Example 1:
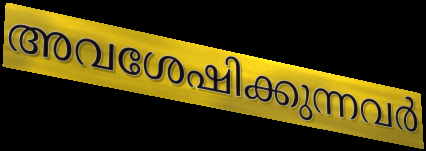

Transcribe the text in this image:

അവശേഷിക്കുന്നവർ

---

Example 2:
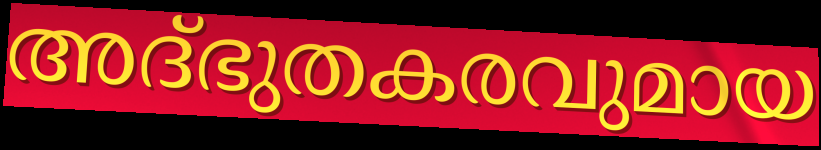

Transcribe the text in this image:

അദ്ഭുതകരവുമായ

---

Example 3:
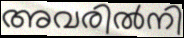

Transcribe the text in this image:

അവരിൽനി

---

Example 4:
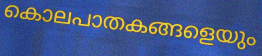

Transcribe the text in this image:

കൊലപാതകങ്ങളെയും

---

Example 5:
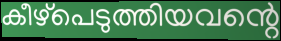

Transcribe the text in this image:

കീഴ്പെടുത്തിയവന്റെ